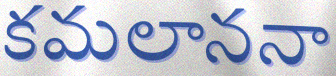
కమలాననా